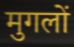
मुगलों